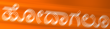
ಹೋದಾಗಲೂ